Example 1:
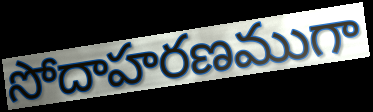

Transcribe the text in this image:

సోదాహరణముగా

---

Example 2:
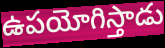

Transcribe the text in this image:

ఉపయోగిస్తాడు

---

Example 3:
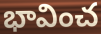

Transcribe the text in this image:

భావించ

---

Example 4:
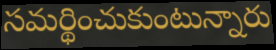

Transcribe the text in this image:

సమర్థించుకుంటున్నారు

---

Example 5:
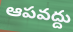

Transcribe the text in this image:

ఆపవద్దు